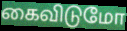
கைவிடுமோ